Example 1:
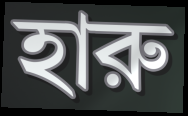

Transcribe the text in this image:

হারু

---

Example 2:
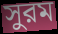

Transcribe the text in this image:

সুরম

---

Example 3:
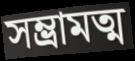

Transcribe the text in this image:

সম্ভ্রামত্ম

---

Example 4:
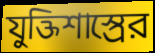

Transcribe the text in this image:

যুক্তিশাস্ত্রের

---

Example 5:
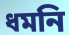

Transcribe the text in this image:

ধমনি